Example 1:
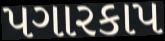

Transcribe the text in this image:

પગારકાપ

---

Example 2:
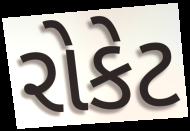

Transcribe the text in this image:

રોકેટ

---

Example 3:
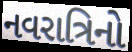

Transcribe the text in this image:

નવરાત્રિનો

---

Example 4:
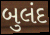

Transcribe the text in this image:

બુલંદ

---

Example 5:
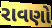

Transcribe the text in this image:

રાવણો